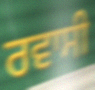
ਰਵਾਸੀ